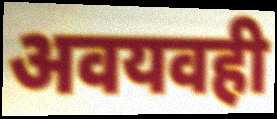
अवयवही